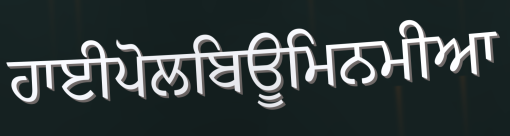
ਹਾਈਪੋਲਬਿਊਮਿਨਮੀਆ